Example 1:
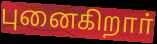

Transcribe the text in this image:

புனைகிறார்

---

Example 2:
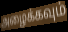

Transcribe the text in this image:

அழைக்கவும்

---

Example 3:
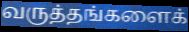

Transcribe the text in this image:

வருத்தங்களைக்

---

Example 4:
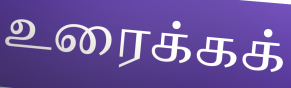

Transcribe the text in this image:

உரைக்கக்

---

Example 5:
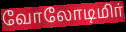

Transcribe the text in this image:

வோலோடிமிர்